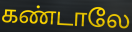
கண்டாலே